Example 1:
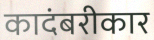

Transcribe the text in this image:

कादंबरीकार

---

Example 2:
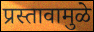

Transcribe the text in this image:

प्रस्तावामुळे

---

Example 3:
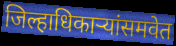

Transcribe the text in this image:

जिल्हाधिकाऱ्यांसमवेत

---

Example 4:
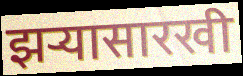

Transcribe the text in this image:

झर्‍यासारखी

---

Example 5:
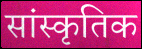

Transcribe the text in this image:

सांस्कृतिक